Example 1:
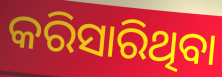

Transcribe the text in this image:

କରିସାରିଥିବା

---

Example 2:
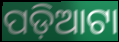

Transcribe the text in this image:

ପଡ଼ିଆଟା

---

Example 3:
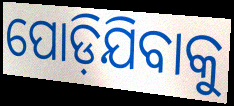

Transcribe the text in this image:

ପୋଡ଼ିଯିବାକୁ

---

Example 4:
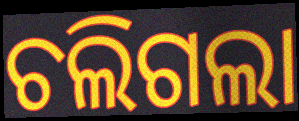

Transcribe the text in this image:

ଚଲିଗଲା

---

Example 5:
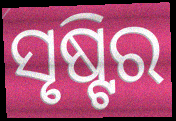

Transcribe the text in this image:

ସୃଷ୍ଟିର